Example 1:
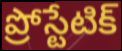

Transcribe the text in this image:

ప్రోస్టేటిక్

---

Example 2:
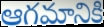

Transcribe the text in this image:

ఆగమానికి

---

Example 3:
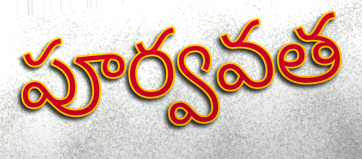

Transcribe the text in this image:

పూర్వవత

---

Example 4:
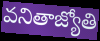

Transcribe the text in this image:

వనితాజ్యోతి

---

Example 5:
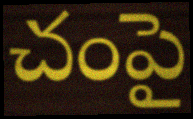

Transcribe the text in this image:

చంపై